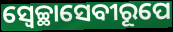
ସ୍ଵେଚ୍ଛାସେବୀରୂପେ